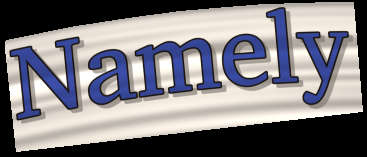
Namely